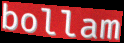
bollam